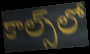
కాల్స్‌లో